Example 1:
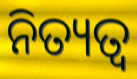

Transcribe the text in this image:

ନିତ୍ୟତ୍ୱ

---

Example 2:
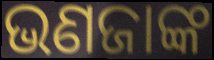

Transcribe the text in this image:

ଭଣଜାଙ୍କ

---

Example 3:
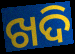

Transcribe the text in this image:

ଖଦି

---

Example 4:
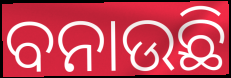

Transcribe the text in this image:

ବନାଉଛି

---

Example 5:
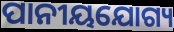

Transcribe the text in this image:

ପାନୀୟଯୋଗ୍ୟ